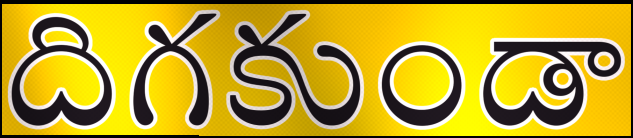
దిగకుండా